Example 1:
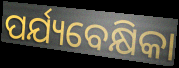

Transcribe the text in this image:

ପର୍ଯ୍ୟବେକ୍ଷିକା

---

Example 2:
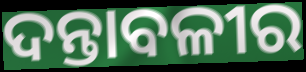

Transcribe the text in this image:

ଦନ୍ତାବଳୀର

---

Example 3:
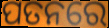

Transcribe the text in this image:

ପତନରେ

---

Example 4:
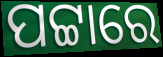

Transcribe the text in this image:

ପଟ୍ଟାରେ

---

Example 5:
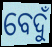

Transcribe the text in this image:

ବେଦୁଁ